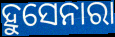
ହୁସେନାରା